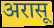
अरासू